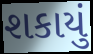
શકાયું